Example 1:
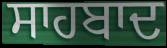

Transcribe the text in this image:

ਸਾਹਬਾਦ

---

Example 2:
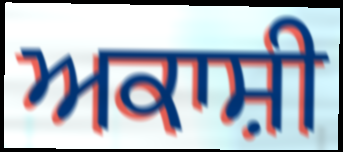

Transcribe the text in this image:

ਅਕਾਸ਼ੀ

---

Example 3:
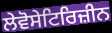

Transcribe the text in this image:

ਲੇਵੋਸੇਟਿਰਿਜ਼ੀਨ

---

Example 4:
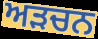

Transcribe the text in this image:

ਅੜਚਨ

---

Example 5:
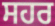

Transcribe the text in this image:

ਸਹਰ